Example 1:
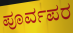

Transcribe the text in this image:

ಪೂರ್ವಪರ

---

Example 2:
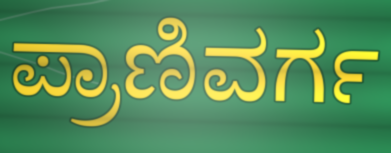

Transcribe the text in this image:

ಪ್ರಾಣಿವರ್ಗ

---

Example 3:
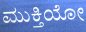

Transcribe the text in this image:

ಮುಕ್ತಿಯೋ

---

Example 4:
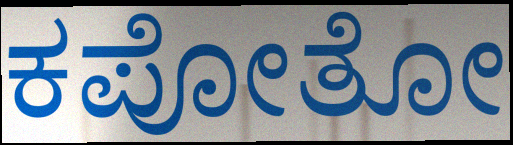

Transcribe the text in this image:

ಕಪೋತೋ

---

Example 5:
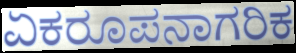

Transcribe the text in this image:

ಏಕರೂಪನಾಗರಿಕ